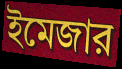
ইমেজার